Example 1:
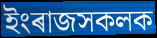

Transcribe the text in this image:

ইংৰাজসকলক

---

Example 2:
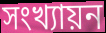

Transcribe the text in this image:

সংখ্যায়ন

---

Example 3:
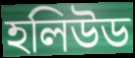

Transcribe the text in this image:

হলিউড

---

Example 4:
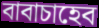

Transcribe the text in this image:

বাবাচাহেব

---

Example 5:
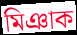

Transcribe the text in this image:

মিঞাক